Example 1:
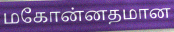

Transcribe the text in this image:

மகோன்னதமான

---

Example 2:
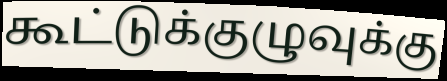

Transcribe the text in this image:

கூட்டுக்குழுவுக்கு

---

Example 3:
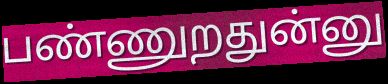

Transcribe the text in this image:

பண்ணுறதுன்னு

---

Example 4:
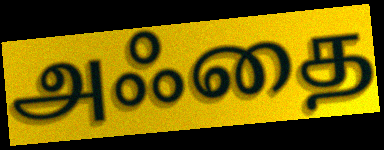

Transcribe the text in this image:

அஃதை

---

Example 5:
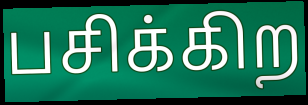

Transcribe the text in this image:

பசிக்கிற